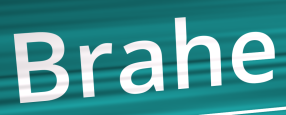
Brahe